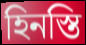
হিনস্তি